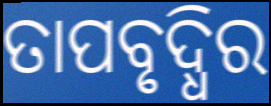
ତାପବୃଦ୍ଧିର